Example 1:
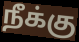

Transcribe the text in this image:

நீக்கு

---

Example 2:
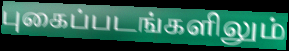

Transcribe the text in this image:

புகைப்படங்களிலும்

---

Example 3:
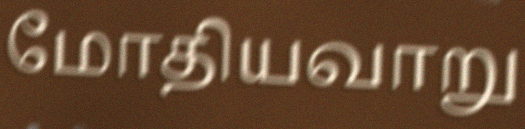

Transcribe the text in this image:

மோதியவாறு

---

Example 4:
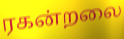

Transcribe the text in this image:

ரகன்றலை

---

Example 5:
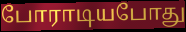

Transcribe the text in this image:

போராடியபோது